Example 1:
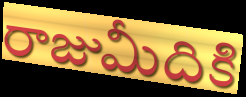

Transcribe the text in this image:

రాజుమీదికి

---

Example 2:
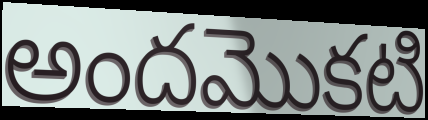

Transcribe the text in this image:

అందమొకటి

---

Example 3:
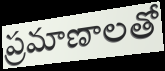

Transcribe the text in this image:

ప్రమాణాలతో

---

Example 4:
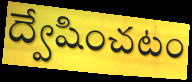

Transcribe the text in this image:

ద్వేషించటం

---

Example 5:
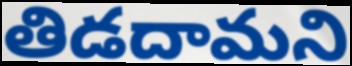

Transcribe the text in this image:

తిడదామని